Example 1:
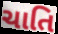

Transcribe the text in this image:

ચાતિ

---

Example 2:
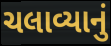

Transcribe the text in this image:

ચલાવ્યાનું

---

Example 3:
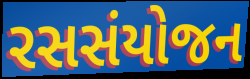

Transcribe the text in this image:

રસસંયોજન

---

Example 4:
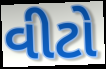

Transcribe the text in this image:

વીટો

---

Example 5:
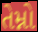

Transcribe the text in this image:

તેમ્નો